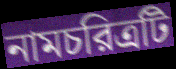
নামচরিত্রটি